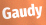
Gaudy